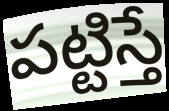
పట్టిస్తే